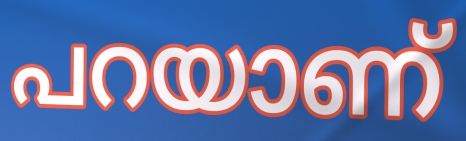
പറയാണ്